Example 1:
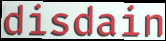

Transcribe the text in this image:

disdain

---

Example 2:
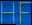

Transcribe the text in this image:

HF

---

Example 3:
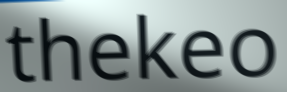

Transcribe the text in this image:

thekeo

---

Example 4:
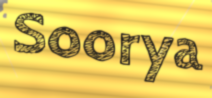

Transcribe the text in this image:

Soorya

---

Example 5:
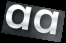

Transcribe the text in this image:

aa